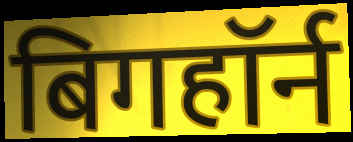
बिगहॉर्न